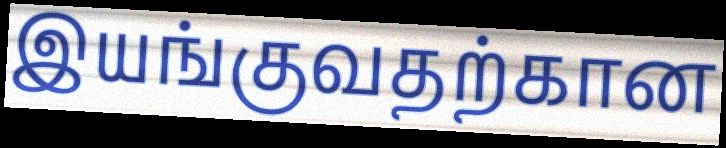
இயங்குவதற்கான